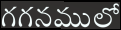
గగనములో